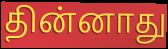
தின்னாது